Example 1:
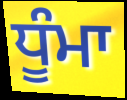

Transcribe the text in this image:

ਧੂੰਮਾ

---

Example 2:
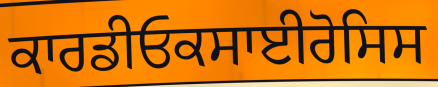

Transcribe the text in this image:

ਕਾਰਡੀਓਕਸਾਈਰੋਸਿਸ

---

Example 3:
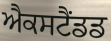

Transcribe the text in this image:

ਐਕਸਟੈਂਡਡ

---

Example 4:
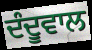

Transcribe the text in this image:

ਦੰਦੂਵਾਲ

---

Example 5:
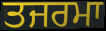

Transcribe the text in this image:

ਤਜਰਮਾ